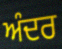
ਅੰਦਰ